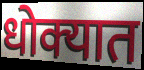
धोक्‍यात